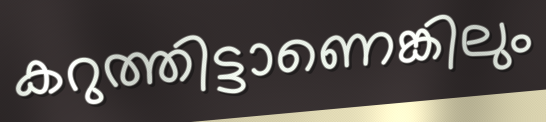
കറുത്തിട്ടാണെങ്കിലും